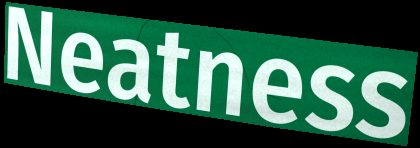
Neatness